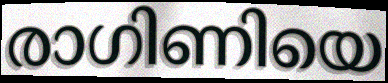
രാഗിണിയെ